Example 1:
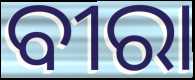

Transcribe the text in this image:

ବୀରା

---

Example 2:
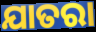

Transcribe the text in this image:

ଯାତରା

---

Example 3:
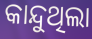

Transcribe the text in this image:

କାନ୍ଦୁଥିଲା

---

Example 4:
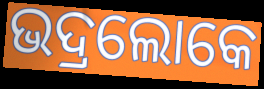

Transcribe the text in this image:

ଭଦ୍ରଲୋକେ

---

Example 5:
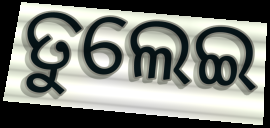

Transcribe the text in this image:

ତୁଲେଇ